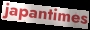
japantimes